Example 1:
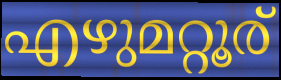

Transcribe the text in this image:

എഴുമറ്റൂര്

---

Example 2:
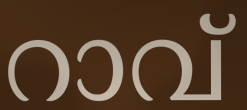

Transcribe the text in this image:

റാവ്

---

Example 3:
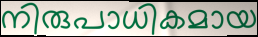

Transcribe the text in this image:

നിരുപാധികമായ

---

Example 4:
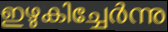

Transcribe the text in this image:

ഇഴുകിച്ചേർന്നു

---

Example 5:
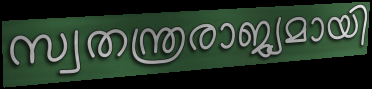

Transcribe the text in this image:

സ്വതന്ത്രരാജ്യമായി